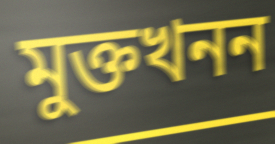
মুক্তখনন